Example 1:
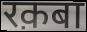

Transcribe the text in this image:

रक़बा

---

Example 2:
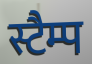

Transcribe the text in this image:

स्टैम्प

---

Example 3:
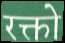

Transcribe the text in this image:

रक्तो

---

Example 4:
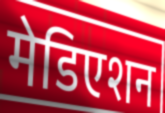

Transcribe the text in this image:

मेडिएशन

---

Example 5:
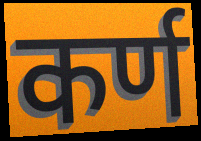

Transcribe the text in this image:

कर्ण